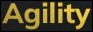
Agility